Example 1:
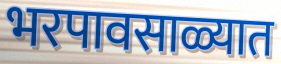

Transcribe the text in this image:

भरपावसाळ्यात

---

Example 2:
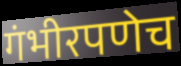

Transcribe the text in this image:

गंभीरपणेच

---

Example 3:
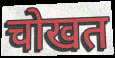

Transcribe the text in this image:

चोखत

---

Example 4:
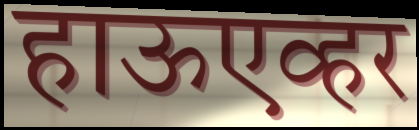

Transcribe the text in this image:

हाऊएव्हर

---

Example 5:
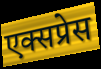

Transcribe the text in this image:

एक्सप्रेस